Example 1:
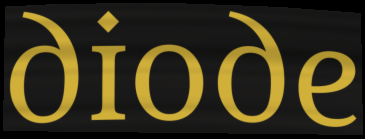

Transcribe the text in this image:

diode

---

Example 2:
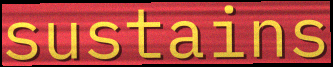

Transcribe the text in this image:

sustains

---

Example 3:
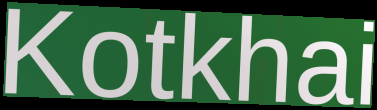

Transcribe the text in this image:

Kotkhai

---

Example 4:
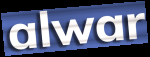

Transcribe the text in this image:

alwar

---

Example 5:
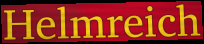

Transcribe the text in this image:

Helmreich